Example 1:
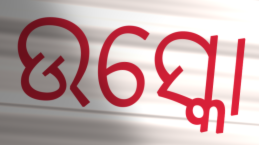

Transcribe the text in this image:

ଉସ୍କୋ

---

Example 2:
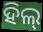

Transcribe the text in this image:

ହିଲ୍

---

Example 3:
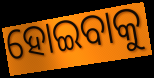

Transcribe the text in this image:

ହୋଇବାକୁ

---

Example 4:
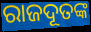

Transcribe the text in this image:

ରାଜଦୂତଙ୍କ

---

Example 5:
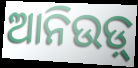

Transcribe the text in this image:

ଆନିଉଡ଼୍